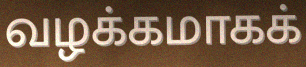
வழக்கமாகக்